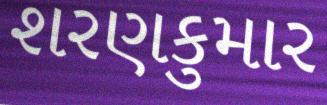
શરણકુમાર